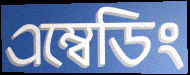
এম্বেডিং